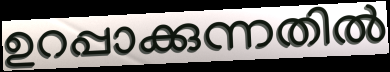
ഉറപ്പാക്കുന്നതിൽ